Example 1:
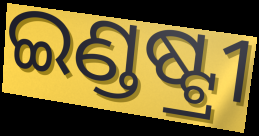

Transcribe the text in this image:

ଇଣ୍ଡଷ୍ଟ୍ରୀ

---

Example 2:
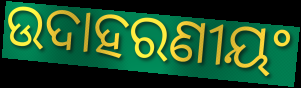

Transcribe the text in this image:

ଉଦାହରଣୀୟଂ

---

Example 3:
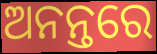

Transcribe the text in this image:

ଅନନ୍ତରେ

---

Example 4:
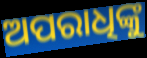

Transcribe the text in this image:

ଅପରାଧିଙ୍କୁ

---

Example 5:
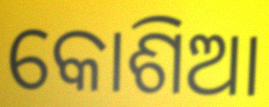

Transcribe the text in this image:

କୋଶିଆ